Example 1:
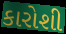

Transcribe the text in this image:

કારોશી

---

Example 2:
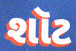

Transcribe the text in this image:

શૉટ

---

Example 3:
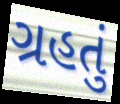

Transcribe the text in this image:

ગ્રહતું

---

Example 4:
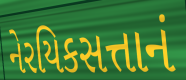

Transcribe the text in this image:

નેરયિકસત્તાનં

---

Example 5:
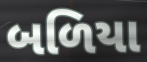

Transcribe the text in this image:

બળિયા